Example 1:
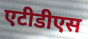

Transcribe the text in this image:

एटीडीएस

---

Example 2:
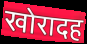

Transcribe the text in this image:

खोरादह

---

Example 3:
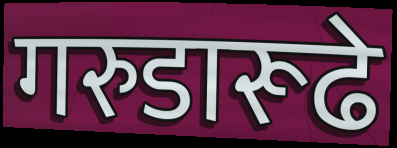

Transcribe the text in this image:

गरुडारूढे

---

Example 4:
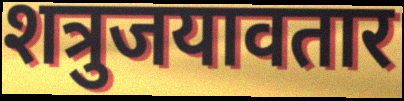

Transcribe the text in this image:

शत्रुजयावतार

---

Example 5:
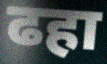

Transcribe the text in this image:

ढहा